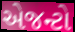
એજન્ટો